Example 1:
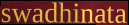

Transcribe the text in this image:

swadhinata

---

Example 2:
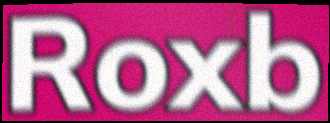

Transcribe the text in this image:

Roxb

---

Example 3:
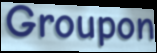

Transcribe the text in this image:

Groupon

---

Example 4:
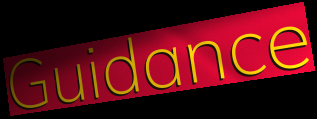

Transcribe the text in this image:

Guidance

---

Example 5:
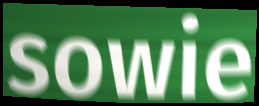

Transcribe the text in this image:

sowie